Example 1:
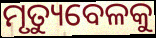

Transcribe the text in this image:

ମୃତ୍ୟୁବେଳକୁ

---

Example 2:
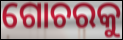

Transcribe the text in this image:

ଗୋଚରକୁ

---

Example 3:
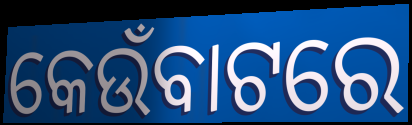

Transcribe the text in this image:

କେଉଁବାଟରେ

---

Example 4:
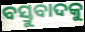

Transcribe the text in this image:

ବସ୍ତୁବାଦକୁ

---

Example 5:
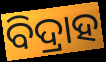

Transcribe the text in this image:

ବିଦ୍ରାହ